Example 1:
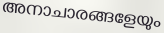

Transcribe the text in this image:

അനാചാരങ്ങളേയും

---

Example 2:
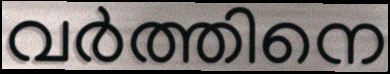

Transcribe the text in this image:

വർത്തിനെ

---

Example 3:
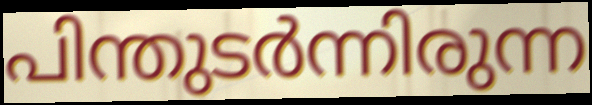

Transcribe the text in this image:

പിന്തുടർന്നിരുന്ന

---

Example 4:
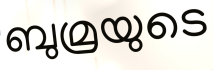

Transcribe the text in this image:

ബുമ്രയുടെ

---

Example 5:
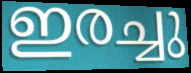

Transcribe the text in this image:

ഇരച്ചു